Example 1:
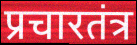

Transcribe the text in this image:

प्रचारतंत्र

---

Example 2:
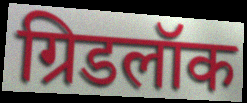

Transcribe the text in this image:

ग्रिडलॉक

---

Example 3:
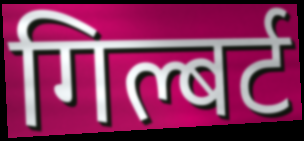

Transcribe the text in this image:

गिल्बर्ट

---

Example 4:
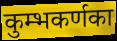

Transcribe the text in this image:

कुम्भकर्णका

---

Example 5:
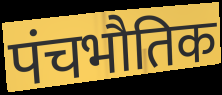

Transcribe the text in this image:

पंचभौतिक